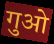
गुओ